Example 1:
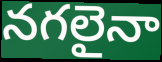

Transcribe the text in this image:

నగలైనా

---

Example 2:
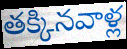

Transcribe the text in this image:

తక్కినవాళ్ల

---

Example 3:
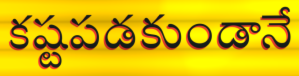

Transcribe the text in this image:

కష్టపడకుండానే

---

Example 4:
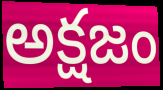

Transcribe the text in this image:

అక్షజం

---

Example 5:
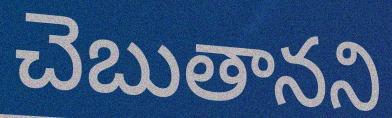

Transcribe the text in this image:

చెబుతానని